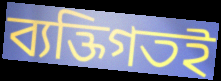
ব্যক্তিগতই